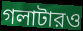
গলাটারও